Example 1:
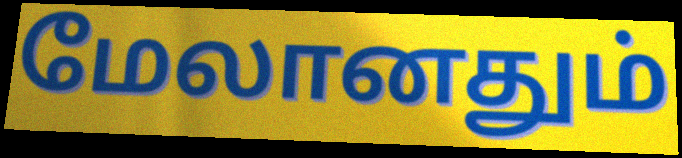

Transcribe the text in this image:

மேலானதும்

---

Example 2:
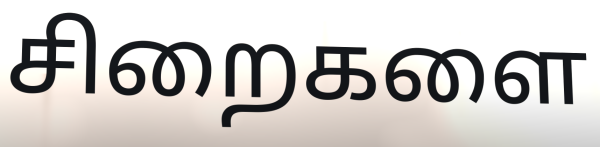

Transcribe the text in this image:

சிறைகளை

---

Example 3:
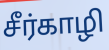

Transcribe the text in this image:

சீர்காழி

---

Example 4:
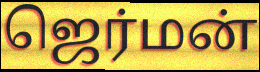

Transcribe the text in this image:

ஜெர்மன்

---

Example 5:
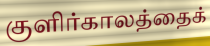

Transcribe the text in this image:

குளிர்காலத்தைக்